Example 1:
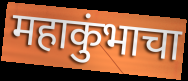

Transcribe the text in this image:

महाकुंभाचा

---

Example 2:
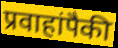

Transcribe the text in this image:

प्रवाहांपैकी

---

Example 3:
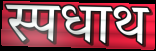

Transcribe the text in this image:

स्पधाथ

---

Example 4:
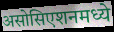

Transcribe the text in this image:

असोसिएशनमध्ये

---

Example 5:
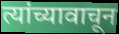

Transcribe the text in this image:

त्यांच्यावाचून